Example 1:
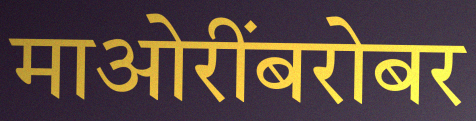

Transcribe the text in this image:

माओरींबरोबर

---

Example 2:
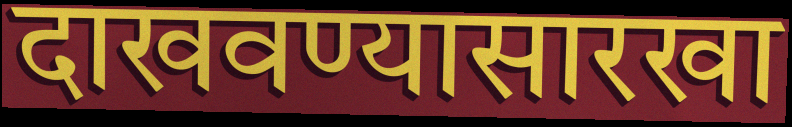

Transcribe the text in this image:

दाखवण्यासारखा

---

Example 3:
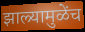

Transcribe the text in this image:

झाल्यामुळेंच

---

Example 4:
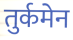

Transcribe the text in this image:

तुर्कमेन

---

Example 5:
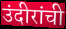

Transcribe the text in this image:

उंदीरांची